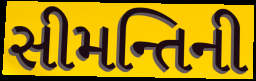
સીમન્તિની